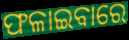
ଫଳାଇବାରେ